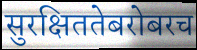
सुरक्षिततेबरोबरच